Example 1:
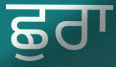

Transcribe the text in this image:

ਛੁਰਾ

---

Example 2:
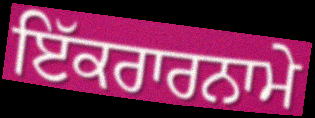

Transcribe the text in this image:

ਇੱਕਰਾਰਨਾਮੇ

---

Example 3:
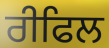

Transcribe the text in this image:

ਰੀਫਿਲ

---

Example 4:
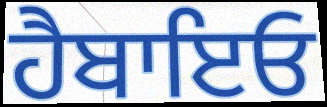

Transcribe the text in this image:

ਹੈਬਾਇਓ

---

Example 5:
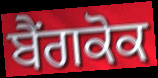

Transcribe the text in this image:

ਬੈਂਗਕੋਕ